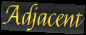
Adjacent